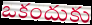
ఒకందుకు